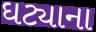
ઘટ્યાના